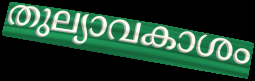
തുല്യാവകാശം